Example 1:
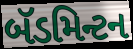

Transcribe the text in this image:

બૅડમિન્ટન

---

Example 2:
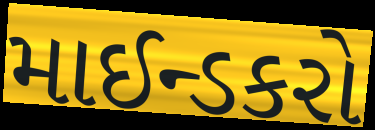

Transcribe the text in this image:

માઈન્ડકરો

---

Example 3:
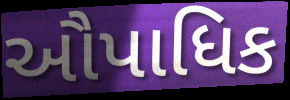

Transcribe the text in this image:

ઔપાધિક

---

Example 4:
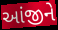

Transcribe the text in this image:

આંજીને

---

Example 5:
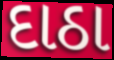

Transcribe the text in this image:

દાઠા